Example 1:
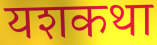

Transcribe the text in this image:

यशकथा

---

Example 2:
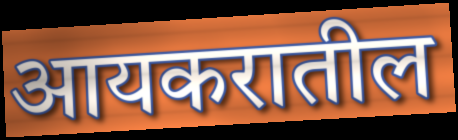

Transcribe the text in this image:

आयकरातील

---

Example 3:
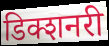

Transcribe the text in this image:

डिक्शनरी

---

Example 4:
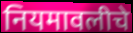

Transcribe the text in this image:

नियमावलीचे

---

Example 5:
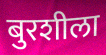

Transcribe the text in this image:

बुरशीला